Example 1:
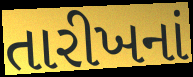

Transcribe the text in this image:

તારીખનાં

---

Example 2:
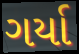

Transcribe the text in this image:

ગર્યા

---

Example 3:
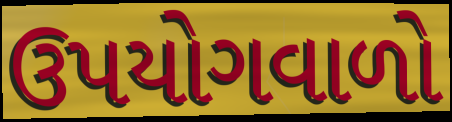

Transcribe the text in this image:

ઉપયોગવાળો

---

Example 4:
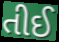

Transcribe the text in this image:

તીઈ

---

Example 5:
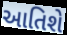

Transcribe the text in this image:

આતિશે